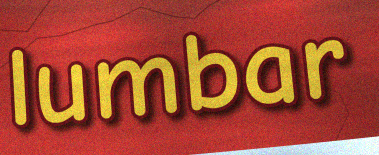
lumbar